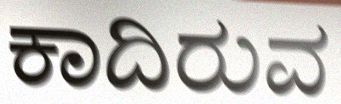
ಕಾದಿರುವ